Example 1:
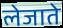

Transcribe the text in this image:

लेजाते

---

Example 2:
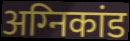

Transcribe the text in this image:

अग्‍निकांड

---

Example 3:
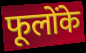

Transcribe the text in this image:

फूलोंके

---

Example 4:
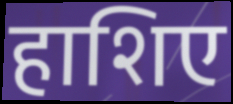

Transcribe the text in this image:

हाशिए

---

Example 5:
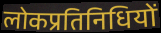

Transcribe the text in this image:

लोकप्रतिनिधियों